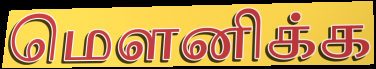
மெளனிக்க